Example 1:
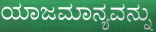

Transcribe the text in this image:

ಯಾಜಮಾನ್ಯವನ್ನು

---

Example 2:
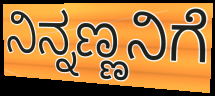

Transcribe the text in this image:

ನಿನ್ನಣ್ಣನಿಗೆ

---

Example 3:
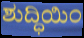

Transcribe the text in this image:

ಶುದ್ಧಿಯಿಂ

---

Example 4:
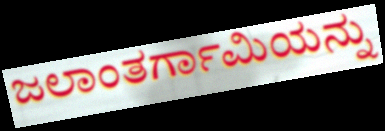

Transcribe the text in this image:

ಜಲಾಂತರ್ಗಾಮಿಯನ್ನು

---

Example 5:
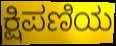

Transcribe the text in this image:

ಕ್ಷಿಪಣಿಯ